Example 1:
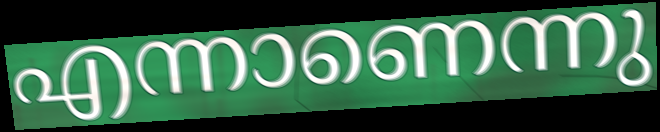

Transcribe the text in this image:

എന്നാണെന്നു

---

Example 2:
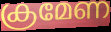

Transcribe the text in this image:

ക്രമേണ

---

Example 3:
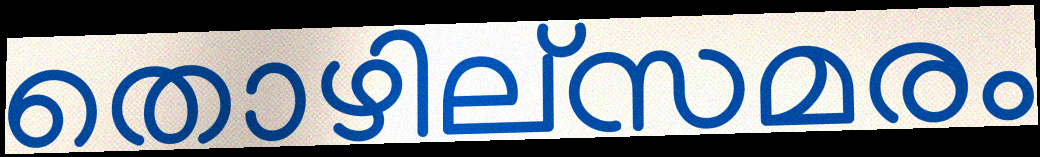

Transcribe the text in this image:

തൊഴില്സമരം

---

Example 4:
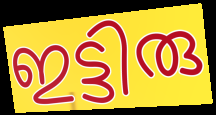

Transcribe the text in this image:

ഇട്ടിരു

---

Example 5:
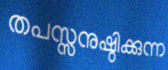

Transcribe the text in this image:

തപസ്സനുഷ്ഠിക്കുന്ന